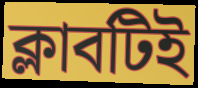
ক্লাবটিই